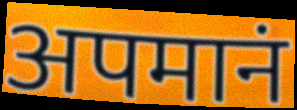
अपमानं